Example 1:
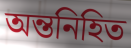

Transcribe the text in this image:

অন্তনিহিত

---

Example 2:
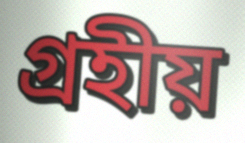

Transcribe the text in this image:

গ্রহীয়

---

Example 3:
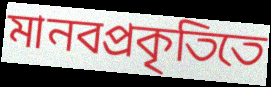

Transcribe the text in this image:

মানবপ্রকৃতিতে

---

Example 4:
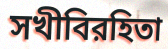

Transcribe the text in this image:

সখীবিরহিতা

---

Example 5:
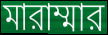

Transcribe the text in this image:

মারাম্মার